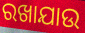
ରଖାଯାଉ